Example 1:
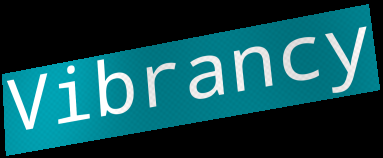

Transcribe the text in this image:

Vibrancy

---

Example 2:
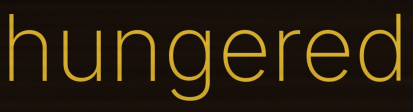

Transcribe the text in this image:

hungered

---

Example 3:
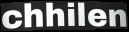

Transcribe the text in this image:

chhilen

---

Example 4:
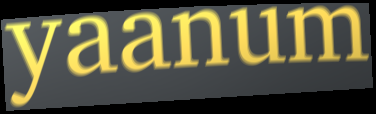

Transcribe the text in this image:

yaanum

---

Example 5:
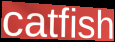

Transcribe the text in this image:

catfish